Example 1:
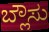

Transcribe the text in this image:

ಬ್ಲೌಸು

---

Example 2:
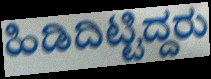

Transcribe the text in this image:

ಹಿಡಿದಿಟ್ಟಿದ್ದರು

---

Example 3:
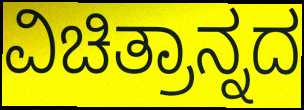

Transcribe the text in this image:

ವಿಚಿತ್ರಾನ್ನದ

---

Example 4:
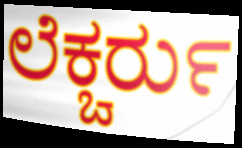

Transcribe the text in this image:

ಲೆಕ್ಚರ್ರು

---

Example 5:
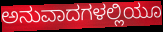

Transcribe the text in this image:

ಅನುವಾದಗಳಲ್ಲಿಯೂ